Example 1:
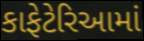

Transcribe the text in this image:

કાફેટેરિઆમાં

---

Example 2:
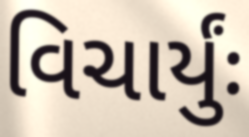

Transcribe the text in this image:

વિચાર્યુંઃ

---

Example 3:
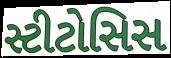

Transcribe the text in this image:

સ્ટીટોસિસ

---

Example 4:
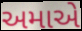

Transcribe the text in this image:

અમાએ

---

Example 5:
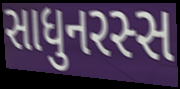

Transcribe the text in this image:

સાધુનરસ્સ